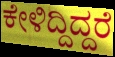
ಕೇಳಿದ್ದಿದ್ದರೆ